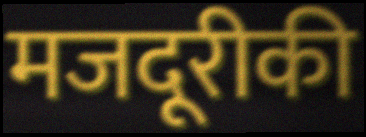
मजदूरीकी